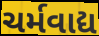
ચર્મવાદ્ય